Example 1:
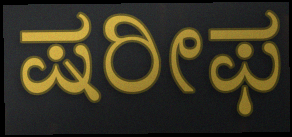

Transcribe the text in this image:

ಷರೀಫ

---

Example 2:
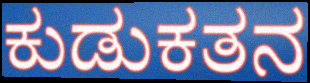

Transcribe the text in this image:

ಕುಡುಕತನ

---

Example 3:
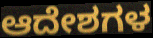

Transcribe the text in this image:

ಆದೇಶಗಳ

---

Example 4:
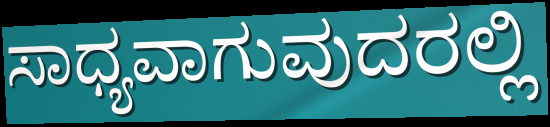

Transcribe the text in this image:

ಸಾಧ್ಯವಾಗುವುದರಲ್ಲಿ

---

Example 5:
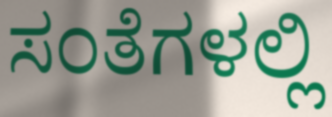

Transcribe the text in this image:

ಸಂತೆಗಳಲ್ಲಿ